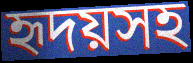
হৃদয়সহ